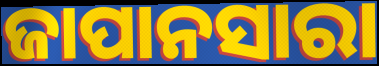
ଜାପାନସାରା